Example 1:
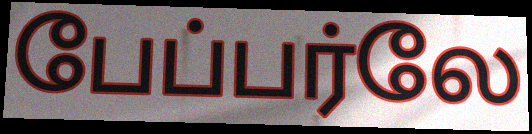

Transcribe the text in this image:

பேப்பர்லே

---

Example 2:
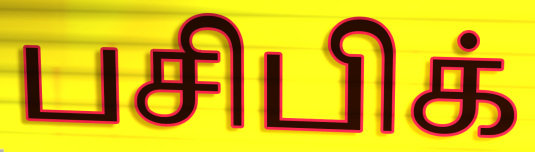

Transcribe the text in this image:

பசிபிக்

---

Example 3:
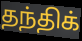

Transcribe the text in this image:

தந்திக்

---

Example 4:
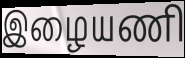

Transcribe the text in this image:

இழையணி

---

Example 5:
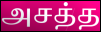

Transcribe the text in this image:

அசத்த